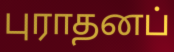
புராதனப்